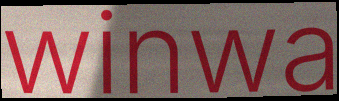
winwa